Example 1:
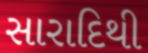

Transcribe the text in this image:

સારાદિથી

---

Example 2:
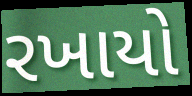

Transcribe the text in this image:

રખાયો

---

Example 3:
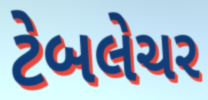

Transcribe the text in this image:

ટેબલેચર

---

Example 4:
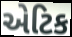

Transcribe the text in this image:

એટિક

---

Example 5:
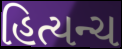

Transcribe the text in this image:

હિત્યન્ચ